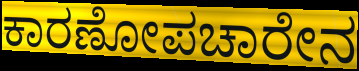
ಕಾರಣೋಪಚಾರೇನ